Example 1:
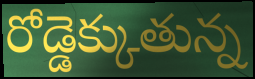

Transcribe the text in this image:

రోడ్డెక్కుతున్న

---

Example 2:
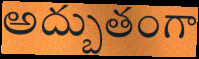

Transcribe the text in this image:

అద్బుతంగా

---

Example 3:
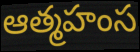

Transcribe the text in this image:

ఆత్మహంస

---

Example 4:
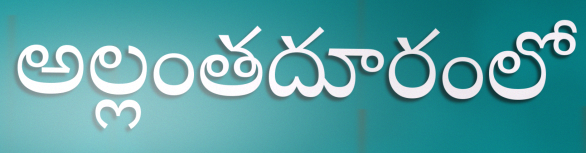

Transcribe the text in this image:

అల్లంతదూరంలో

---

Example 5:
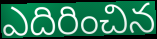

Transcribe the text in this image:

ఎదిరించిన